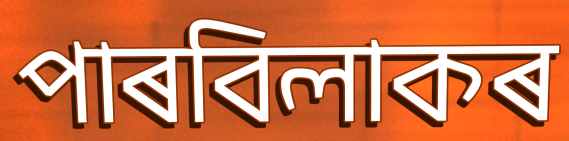
পাৰবিলাকৰ